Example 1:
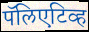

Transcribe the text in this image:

पॅलिएटिव्ह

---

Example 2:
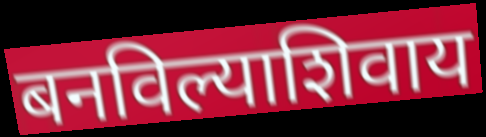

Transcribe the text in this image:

बनविल्याशिवाय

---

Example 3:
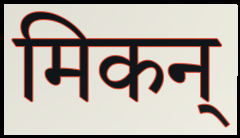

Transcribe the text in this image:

मिकन्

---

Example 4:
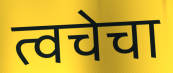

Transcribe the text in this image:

त्वचेचा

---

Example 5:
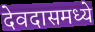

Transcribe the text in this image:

देवदासमध्ये